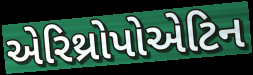
એરિથ્રોપોએટિન